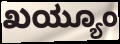
ಖಯ್ಯೂಂ